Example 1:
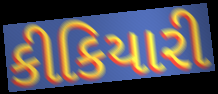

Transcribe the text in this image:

કીકિયારી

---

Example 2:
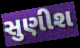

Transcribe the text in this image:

સુણીશ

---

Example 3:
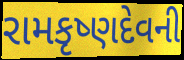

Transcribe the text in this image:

રામકૃષ્ણદેવની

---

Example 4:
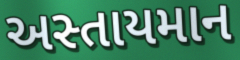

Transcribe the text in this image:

અસ્તાયમાન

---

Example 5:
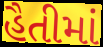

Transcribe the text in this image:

હૈતીમાં